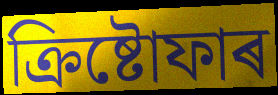
ক্ৰিষ্টোফাৰ